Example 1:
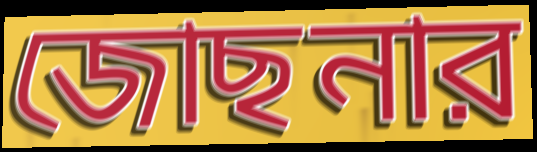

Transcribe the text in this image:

জোছনার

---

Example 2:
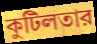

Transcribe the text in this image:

কুটিলতার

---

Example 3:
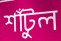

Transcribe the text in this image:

শাঁটুল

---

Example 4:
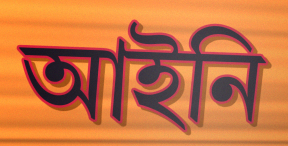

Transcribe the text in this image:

আইনি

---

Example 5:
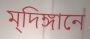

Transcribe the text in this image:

ম্‌দিঙ্গানে